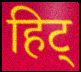
हिट्